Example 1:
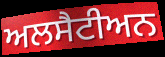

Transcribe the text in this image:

ਅਲਸੈਟੀਅਨ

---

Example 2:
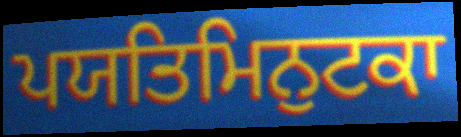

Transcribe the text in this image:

ਪਯਤਿਮਿਨੁਟਕਾ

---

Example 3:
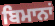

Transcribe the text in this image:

ਬਿਮਾਨਾਂ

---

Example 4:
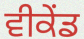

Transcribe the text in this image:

ਵੀਕੇਂਡ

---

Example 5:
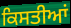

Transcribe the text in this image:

ਕਿਸਤੀਆਂ